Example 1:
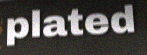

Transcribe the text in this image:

plated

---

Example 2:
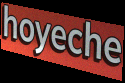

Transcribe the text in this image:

hoyeche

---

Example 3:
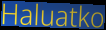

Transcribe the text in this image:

Haluatko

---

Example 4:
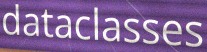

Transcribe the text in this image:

dataclasses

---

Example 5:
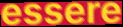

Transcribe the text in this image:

essere